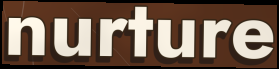
nurture